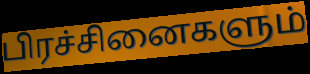
பிரச்சினைகளும்